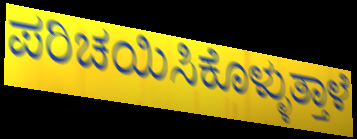
ಪರಿಚಯಿಸಿಕೊಳ್ಳುತ್ತಾಳೆ